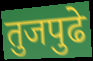
तुजपुढे